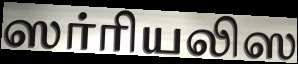
ஸர்ரியலிஸ